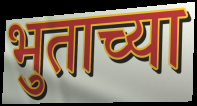
भुताच्या